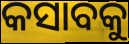
କସାବକୁ